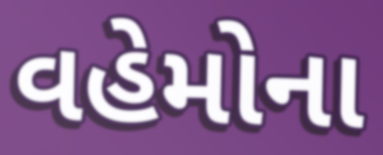
વહેમોના